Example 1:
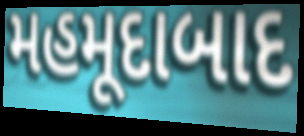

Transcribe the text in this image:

મહમૂદાબાદ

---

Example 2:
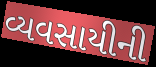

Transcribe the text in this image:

વ્યવસાયીની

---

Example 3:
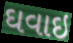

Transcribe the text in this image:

ઘવાઇ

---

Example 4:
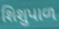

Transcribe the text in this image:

શિશુપાળ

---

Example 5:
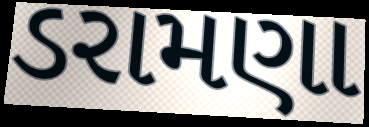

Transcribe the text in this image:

ડરામણા